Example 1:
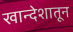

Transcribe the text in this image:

खान्देशातून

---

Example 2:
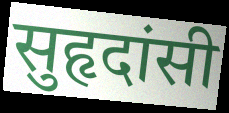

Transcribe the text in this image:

सुहृदांसी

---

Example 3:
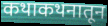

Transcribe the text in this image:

कथाकथनातून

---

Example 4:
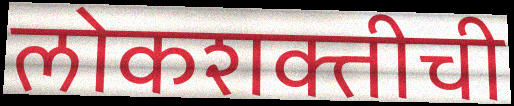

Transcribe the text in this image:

लोकशक्तीची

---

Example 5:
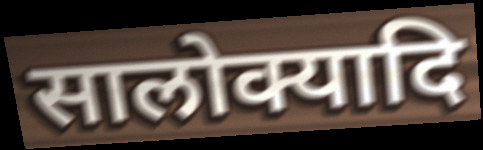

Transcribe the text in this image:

सालोक्यादि